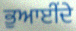
ਭੁਆਈਂਦੇ